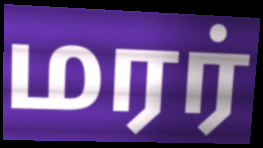
மரர்